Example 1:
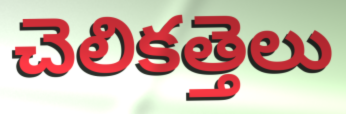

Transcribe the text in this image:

చెలికత్తెలు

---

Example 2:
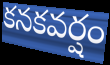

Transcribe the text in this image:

కనకవర్షం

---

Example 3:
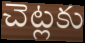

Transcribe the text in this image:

చెట్లకు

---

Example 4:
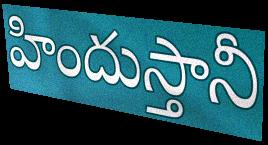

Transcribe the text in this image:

హిందుస్తానీ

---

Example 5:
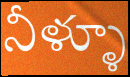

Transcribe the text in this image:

నీళ్ళూ